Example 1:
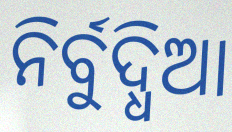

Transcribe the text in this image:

ନିର୍ବୁଦ୍ଧିଆ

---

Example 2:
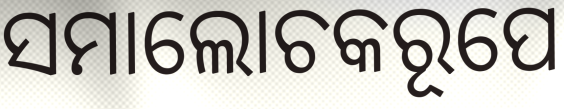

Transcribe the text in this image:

ସମାଲୋଚକରୂପେ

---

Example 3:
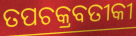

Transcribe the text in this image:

ତପଚକ୍ରବତୀକୀ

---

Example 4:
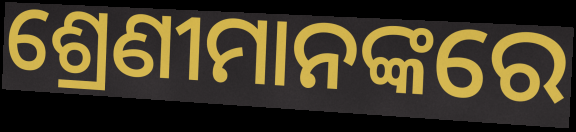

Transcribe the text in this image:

ଶ୍ରେଣୀମାନଙ୍କରେ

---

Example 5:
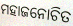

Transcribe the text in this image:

ମହାଜନୋଚିତ